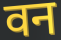
वन